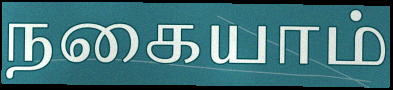
நகையாம்